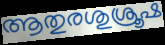
ആതുരശുശ്രൂഷ